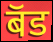
बॅड